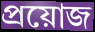
প্ৰয়োজ